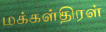
மக்கள்திரள்